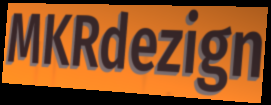
MKRdezign